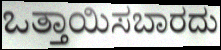
ಒತ್ತಾಯಿಸಬಾರದು